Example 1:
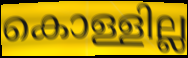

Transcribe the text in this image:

കൊള്ളില്ല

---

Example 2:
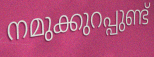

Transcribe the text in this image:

നമുക്കുറപ്പുണ്ട്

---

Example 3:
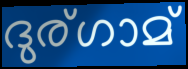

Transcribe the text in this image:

ദുര്ഗാമ്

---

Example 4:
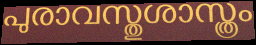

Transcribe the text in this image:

പുരാവസ്തുശാസ്ത്രം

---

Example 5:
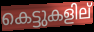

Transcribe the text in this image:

കെട്ടുകളില്